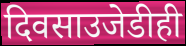
दिवसाउजेडीही